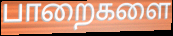
பாறைகளை